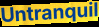
Untranquil